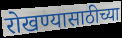
रोखण्यासाठीच्या